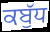
ਕਬੁੱਧ